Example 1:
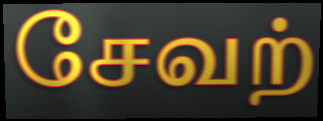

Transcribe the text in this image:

சேவற்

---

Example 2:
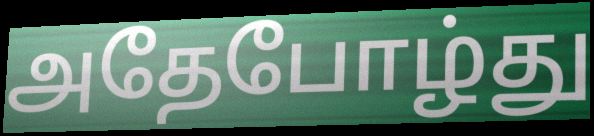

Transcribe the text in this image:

அதேபோழ்து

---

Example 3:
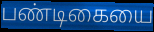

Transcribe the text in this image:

பண்டிகையை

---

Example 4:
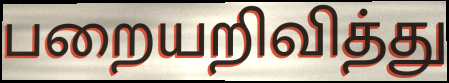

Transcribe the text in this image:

பறையறிவித்து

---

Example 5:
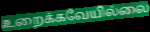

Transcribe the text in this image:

உறைக்கவேயில்லை